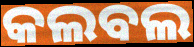
କଲବଲ